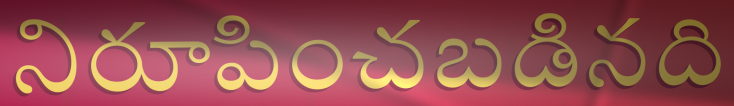
నిరూపించబడినది